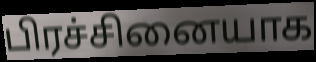
பிரச்சினையாக